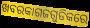
ଖବରକାଗଜଗୁଡିକରେ